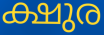
ക്ഷുര